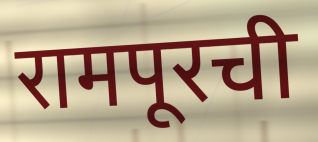
रामपूरची